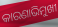
କାରଣାଭିମୁଖୀ